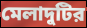
মেলাদুটির